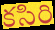
కసిరి